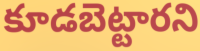
కూడబెట్టారని